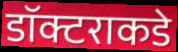
डॉक्टराकडे